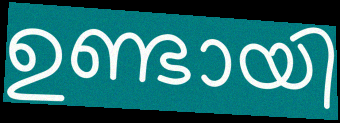
ഉണ്ടായി